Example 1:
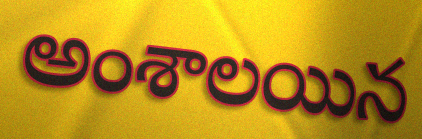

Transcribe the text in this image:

అంశాలయిన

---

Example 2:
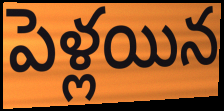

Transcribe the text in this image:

పెళ్లయిన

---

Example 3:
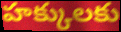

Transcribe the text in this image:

హక్కులకు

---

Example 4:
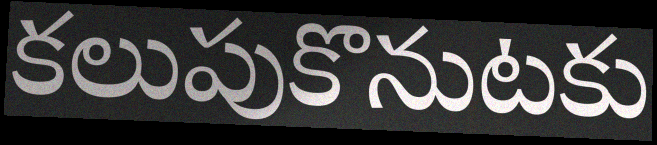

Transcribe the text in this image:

కలుపుకొనుటకు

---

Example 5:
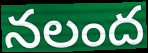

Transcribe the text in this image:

నలంద